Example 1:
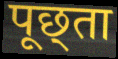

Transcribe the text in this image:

पूछ्ता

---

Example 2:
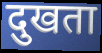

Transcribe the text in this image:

दुखता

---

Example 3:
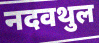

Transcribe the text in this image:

नदवथुल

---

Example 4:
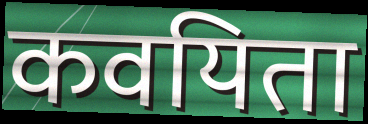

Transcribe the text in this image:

कवयिता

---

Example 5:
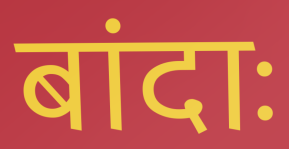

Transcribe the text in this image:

बांदाः